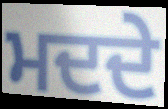
ਮਦਦੇ